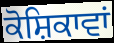
ਕੋਸ਼ਿਕਾਵਾਂ